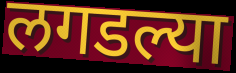
लगडल्या